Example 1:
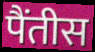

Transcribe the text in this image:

पैंतीस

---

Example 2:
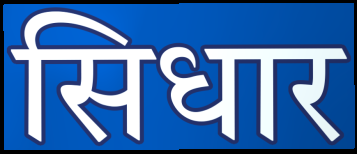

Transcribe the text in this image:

सिधार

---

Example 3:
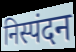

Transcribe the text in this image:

निस्पंदन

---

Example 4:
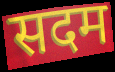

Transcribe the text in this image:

सदम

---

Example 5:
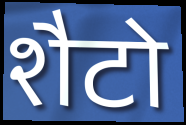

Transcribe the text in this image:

शैटो